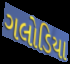
ગલોડિયા